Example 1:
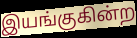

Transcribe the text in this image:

இயங்குகின்ற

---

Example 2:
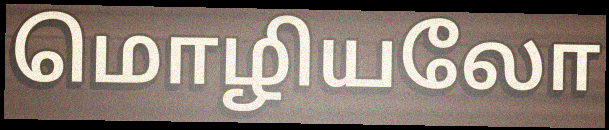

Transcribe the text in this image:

மொழியலோ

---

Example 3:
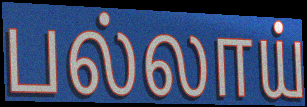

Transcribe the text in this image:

பல்லாய்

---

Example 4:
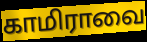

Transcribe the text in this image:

காமிராவை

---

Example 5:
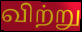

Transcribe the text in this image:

விற்று